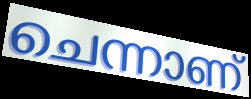
ചെന്നാണ്